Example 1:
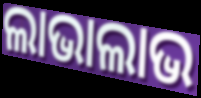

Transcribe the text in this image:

ଲାଭାଲାଭ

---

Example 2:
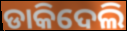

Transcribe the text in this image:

ଡାକିଦେଲି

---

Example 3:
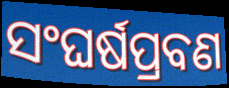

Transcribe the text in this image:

ସଂଘର୍ଷପ୍ରବଣ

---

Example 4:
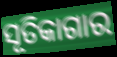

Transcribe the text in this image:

ସୂତିକାଗାର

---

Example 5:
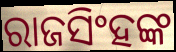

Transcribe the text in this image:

ରାଜସିଂହଙ୍କ